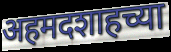
अहमदशाहच्या